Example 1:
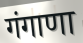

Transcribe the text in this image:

गंगाणा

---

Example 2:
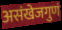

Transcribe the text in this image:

असंखेजगुणं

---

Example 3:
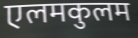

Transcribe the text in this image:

एलमकुलम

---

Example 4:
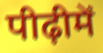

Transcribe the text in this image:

पीढ़ीमें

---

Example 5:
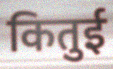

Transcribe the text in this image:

कितुई